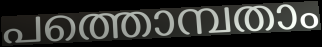
പത്തൊമ്പതാം